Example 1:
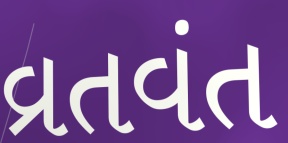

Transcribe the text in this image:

વ્રતવંત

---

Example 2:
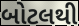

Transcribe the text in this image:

બોટલથી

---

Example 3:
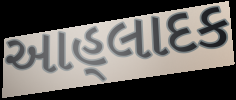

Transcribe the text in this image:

આહ્‌લાદક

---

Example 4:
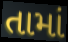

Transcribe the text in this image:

તામાં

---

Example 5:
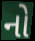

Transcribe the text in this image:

નો